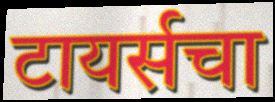
टायर्सचा